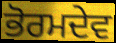
ਭੋਰਮਦੇਵ